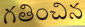
గతించిన